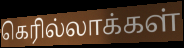
கெரில்லாக்கள்